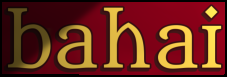
bahai